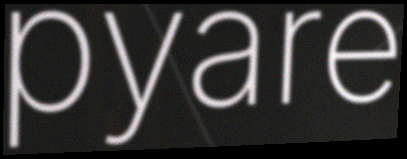
pyare